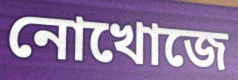
নোখোজে